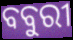
ବବୁରୀ